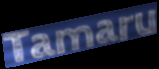
Tamaru